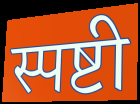
स्पष्टी